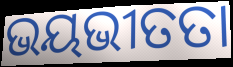
ଭୟଭୀତତା